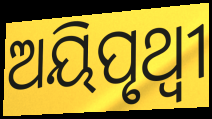
ଅୟିପୃଥ୍ୱୀ